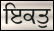
ਇਕਤੁ